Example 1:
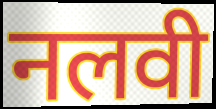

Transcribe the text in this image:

नलवी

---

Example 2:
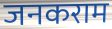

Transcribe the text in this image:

जनकराम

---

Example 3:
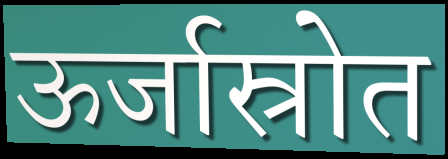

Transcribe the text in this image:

ऊर्जास्रोत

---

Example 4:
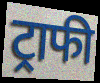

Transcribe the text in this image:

ट्राफी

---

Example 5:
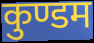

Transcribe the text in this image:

कुण्डम